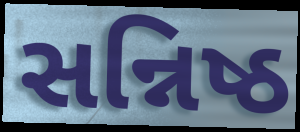
સન્નિષ્ઠ